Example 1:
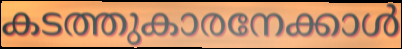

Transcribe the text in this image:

കടത്തുകാരനേക്കാൾ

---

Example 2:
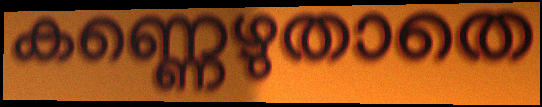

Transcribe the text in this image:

കണ്ണെഴുതാതെ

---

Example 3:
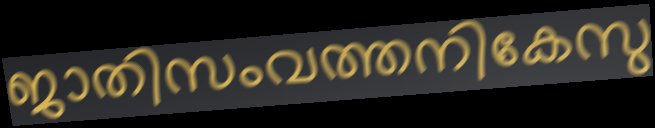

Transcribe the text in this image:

ജാതിസംവത്തനികേസു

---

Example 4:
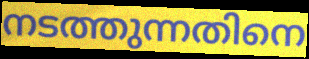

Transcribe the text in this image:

നടത്തുന്നതിനെ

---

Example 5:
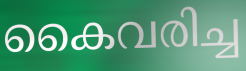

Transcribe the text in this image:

കൈവരിച്ച